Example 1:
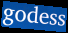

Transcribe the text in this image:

godess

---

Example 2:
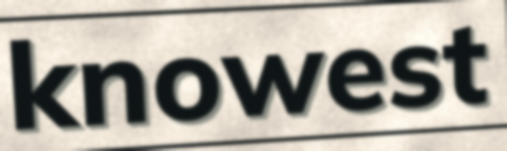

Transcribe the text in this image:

knowest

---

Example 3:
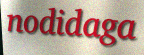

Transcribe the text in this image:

nodidaga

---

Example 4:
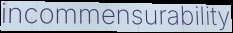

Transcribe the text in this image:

incommensurability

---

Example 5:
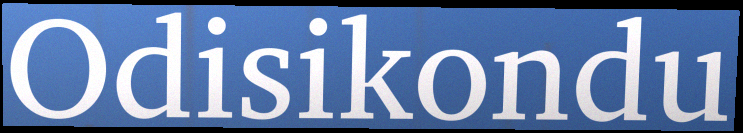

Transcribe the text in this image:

Odisikondu